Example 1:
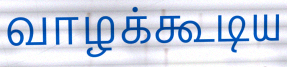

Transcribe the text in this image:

வாழக்கூடிய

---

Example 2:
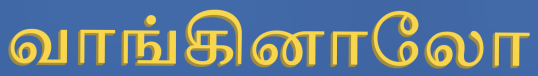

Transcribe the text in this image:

வாங்கினாலோ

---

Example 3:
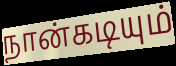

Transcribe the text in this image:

நான்கடியும்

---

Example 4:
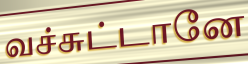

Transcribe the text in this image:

வச்சுட்டானே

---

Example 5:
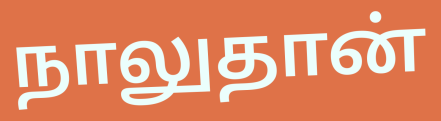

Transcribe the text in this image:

நாலுதான்